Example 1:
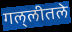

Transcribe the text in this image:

गल्लीतले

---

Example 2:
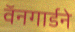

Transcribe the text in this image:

वॅनगार्डने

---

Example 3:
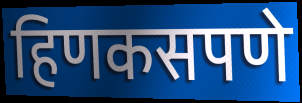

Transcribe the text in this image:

हिणकसपणे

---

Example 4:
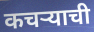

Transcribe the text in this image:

कचर्‍याची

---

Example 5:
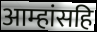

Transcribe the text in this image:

आम्हांसहि